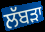
ਲੱਬੜਾ